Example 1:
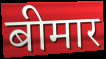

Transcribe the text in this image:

बीमार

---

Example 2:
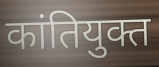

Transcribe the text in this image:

कांतियुक्त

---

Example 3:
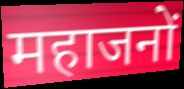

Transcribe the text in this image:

महाजनों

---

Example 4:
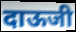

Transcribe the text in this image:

दाऊजी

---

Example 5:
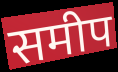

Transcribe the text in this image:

समीप